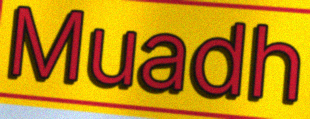
Muadh